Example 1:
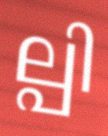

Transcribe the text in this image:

ല്പി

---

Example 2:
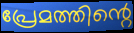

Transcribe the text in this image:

പ്രേമത്തിന്റെ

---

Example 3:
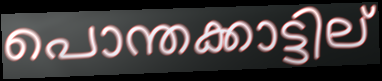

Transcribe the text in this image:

പൊന്തക്കാട്ടില്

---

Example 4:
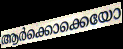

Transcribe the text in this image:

ആർക്കൊക്കെയോ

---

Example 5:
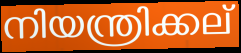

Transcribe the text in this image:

നിയന്ത്രിക്കല്